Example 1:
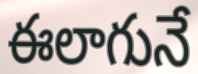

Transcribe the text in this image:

ఈలాగునే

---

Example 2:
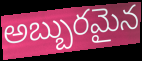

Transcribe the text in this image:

అబ్బురమైన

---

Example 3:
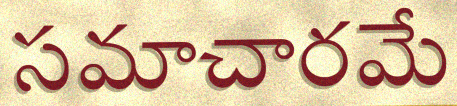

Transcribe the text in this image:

సమాచారమే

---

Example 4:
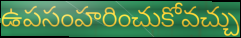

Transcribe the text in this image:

ఉపసంహరించుకోవచ్చు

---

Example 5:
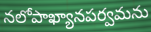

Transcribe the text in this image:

నలోపాఖ్యానపర్వమను